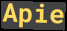
Apie